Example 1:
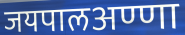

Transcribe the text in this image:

जयपालअण्णा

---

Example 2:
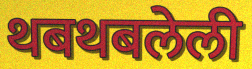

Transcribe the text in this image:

थबथबलेली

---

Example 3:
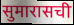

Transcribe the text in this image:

सुमारासची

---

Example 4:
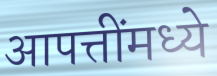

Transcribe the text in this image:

आपत्तींमध्ये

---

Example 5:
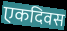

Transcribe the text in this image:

एकदिवस